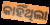
କାହିଁଥିଲା